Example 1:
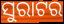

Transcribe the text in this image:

ସୁରାଟର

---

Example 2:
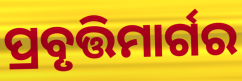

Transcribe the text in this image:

ପ୍ରବୃତ୍ତିମାର୍ଗର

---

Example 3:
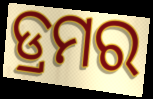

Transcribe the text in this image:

ଡ୍ରମର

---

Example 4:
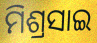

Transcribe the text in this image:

ମିଶ୍ରସାଇ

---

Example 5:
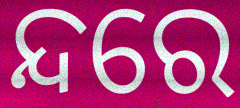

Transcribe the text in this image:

ନ୍ଦରେ